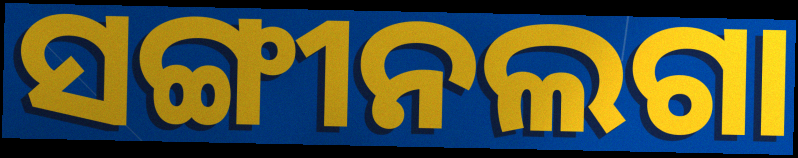
ସଙ୍ଗୀନଲଗା